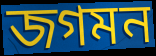
জগমন